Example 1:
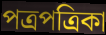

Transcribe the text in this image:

পত্রপত্রিকা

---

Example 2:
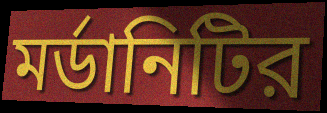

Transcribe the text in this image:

মর্ডানিটির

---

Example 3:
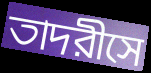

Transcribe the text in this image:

তাদরীসে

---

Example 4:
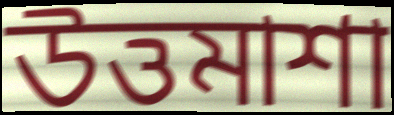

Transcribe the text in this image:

উত্তমাশা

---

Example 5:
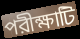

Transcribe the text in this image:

পরীক্ষাটি